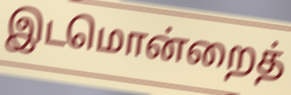
இடமொன்றைத்